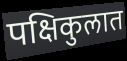
पक्षिकुलात